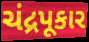
ચંદ્રપૂકાર